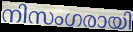
നിസംഗരായി